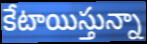
కేటాయిస్తున్నా